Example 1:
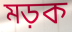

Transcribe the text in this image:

মড়ক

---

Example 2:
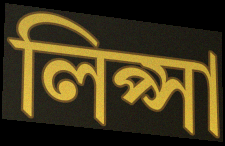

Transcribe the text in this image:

লিপ্সা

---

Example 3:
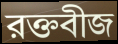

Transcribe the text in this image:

রক্তবীজ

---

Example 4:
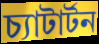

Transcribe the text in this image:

চ্যাটার্টন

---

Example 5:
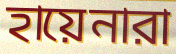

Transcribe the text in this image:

হায়েনারা